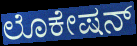
ಲೊಕೇಷನ್